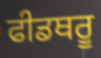
ਫੀਡਥਰੂ